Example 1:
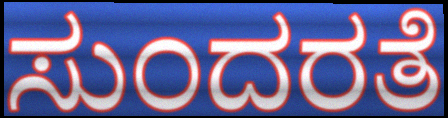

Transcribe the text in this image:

ಸುಂದರತೆ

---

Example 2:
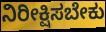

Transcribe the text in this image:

ನಿರೀಕ್ಷಿಸಬೇಕು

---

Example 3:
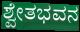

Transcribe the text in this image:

ಶ್ವೇತಭವನ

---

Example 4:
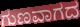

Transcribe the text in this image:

ಗುಣವಾಗದ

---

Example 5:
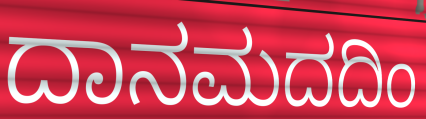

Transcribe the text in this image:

ದಾನಮದದಿಂ